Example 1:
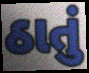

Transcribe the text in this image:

ઠાતું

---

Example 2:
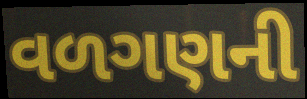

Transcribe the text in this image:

વળગણની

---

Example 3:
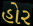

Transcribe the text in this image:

હોર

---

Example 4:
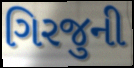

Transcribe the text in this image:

ગિરજુની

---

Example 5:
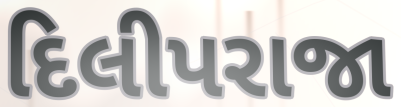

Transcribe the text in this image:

દિલીપરાજા